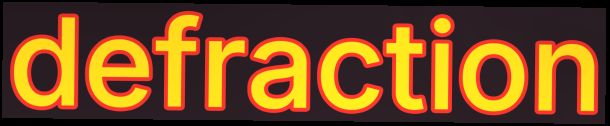
defraction